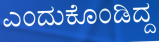
ಎಂದುಕೊಂಡಿದ್ದ